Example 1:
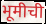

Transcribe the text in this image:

भूमीची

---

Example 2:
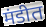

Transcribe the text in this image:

मंडीत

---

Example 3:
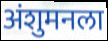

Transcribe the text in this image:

अंशुमनला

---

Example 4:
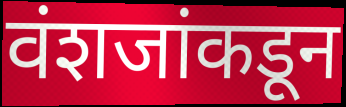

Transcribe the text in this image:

वंशजांकडून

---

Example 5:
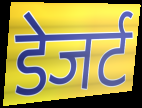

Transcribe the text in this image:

डेजर्ट